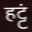
हट्टं